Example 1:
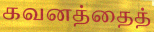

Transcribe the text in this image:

கவனத்தைத்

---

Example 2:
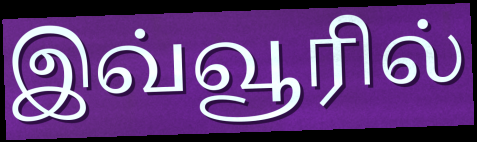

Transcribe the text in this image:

இவ்வூரில்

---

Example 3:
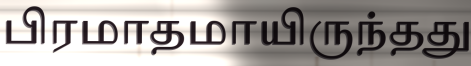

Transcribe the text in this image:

பிரமாதமாயிருந்தது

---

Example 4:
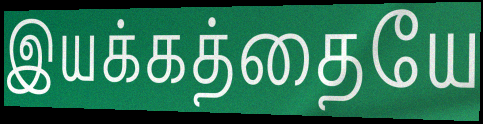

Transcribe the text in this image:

இயக்கத்தையே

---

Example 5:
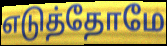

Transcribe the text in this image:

எடுத்தோமே